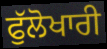
ਫੁੱਲੋਖਾਰੀ